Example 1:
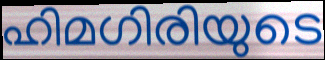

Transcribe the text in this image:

ഹിമഗിരിയുടെ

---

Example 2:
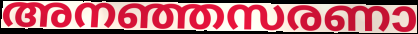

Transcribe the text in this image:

അനഞ്ഞസരണാ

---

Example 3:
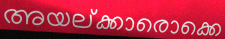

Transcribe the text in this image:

അയല്ക്കാരൊക്കെ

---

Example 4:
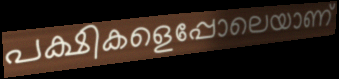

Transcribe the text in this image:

പക്ഷികളെപ്പോലെയാണ്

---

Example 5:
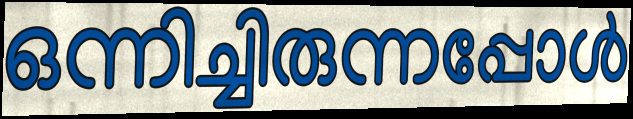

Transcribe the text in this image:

ഒന്നിച്ചിരുന്നപ്പോൾ